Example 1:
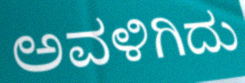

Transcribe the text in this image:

ಅವಳಿಗಿದು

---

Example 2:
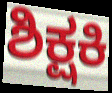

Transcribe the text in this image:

ಶಿಕ್ಷಕಿ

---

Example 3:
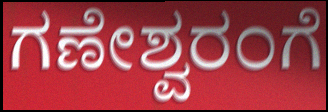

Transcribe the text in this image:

ಗಣೇಶ್ವರಂಗೆ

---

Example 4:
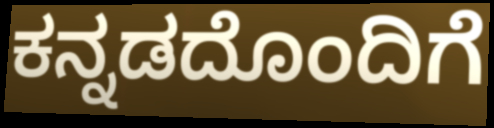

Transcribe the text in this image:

ಕನ್ನಡದೊಂದಿಗೆ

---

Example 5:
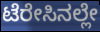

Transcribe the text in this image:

ಟೆರೇಸಿನಲ್ಲೇ